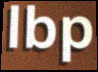
lbp